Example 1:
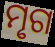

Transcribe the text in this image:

ମୃଗ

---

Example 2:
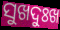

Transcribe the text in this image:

ସୁଖଦୁଃଖ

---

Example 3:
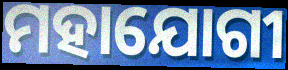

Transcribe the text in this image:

ମହାଯୋଗୀ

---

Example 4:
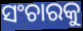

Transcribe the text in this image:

ସଂଚାରକୁ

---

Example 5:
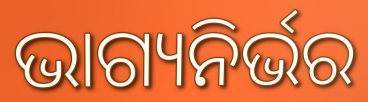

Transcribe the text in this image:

ଭାଗ୍ୟନିର୍ଭର